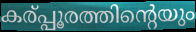
കര്പ്പൂരത്തിന്റെയും